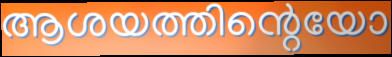
ആശയത്തിന്റെയോ